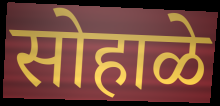
सोहाळे